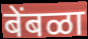
बेंबळा